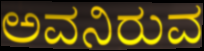
ಅವನಿರುವ